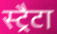
स्ट्रैटा